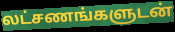
லட்சணங்களுடன்